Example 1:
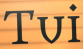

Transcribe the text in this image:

Tui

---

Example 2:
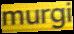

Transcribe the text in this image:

murgi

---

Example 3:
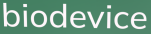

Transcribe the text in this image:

biodevice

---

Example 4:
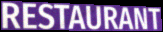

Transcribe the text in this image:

RESTAURANT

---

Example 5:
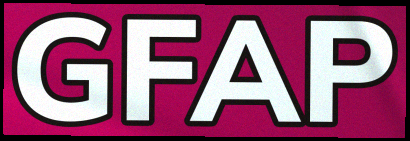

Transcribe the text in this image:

GFAP